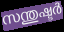
സന്തുഷ്ടർ